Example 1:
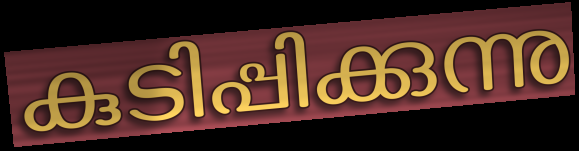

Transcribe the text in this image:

കുടിപ്പിക്കുന്നു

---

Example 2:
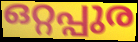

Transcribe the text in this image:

ഒറ്റപ്പുര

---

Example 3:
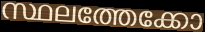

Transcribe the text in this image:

സ്ഥലത്തേക്കോ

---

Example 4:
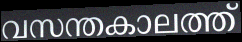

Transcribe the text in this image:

വസന്തകാലത്ത്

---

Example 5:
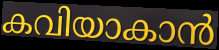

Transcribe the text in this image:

കവിയാകാൻ